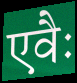
एवैः